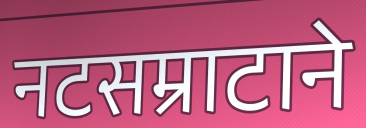
नटसम्राटाने